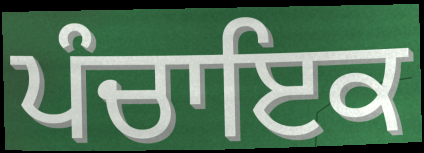
ਪੰਚਾਇਕ